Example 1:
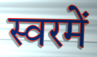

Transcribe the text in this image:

स्वरमें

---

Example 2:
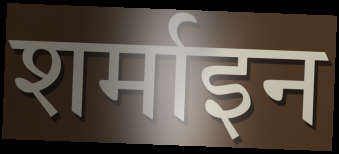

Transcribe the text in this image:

शर्माइन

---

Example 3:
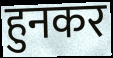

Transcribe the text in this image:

हुनकर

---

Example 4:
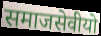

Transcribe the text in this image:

समाजसेवीयो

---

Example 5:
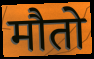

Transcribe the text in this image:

मौतो